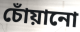
চোঁয়ানো